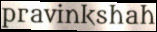
pravinkshah